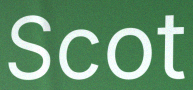
Scot